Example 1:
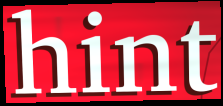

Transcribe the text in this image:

hint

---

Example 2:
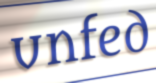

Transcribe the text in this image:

unfed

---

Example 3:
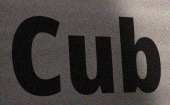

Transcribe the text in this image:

Cub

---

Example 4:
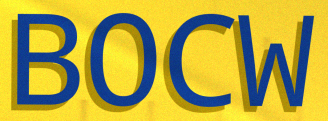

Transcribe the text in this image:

BOCW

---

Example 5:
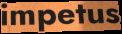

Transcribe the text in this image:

impetus